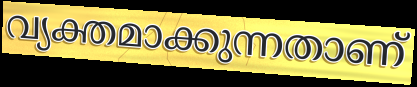
വ്യക്തമാക്കുന്നതാണ്